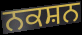
ਨਕਸ਼ਨ